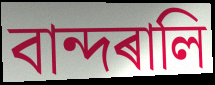
বান্দৰালি